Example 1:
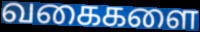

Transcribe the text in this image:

வகைகளை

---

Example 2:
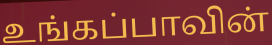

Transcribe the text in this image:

உங்கப்பாவின்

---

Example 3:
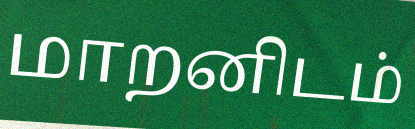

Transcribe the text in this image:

மாறனிடம்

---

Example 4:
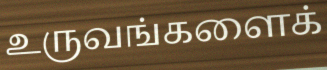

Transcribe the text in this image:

உருவங்களைக்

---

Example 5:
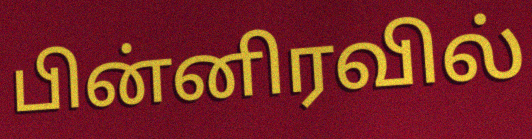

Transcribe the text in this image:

பின்னிரவில்